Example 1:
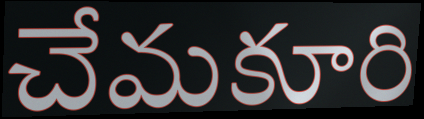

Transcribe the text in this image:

చేమకూరి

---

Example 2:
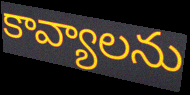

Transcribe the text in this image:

కావ్యాలను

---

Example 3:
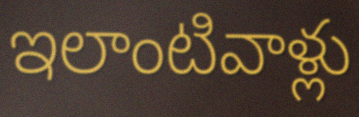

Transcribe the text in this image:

ఇలాంటివాళ్లు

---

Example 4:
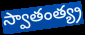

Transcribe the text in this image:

స్వాతంత్య్ర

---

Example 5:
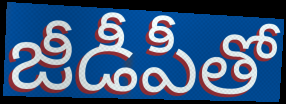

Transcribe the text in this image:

జీడీపీతో